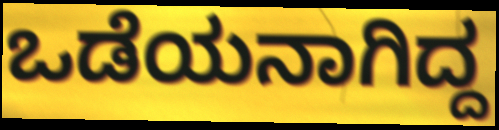
ಒಡೆಯನಾಗಿದ್ದ